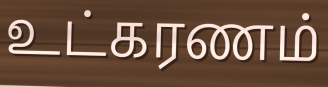
உட்கரணம்